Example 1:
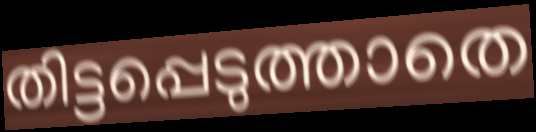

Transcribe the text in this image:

തിട്ടപ്പെടുത്താതെ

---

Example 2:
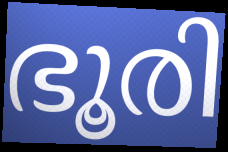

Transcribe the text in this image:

ഭൂരി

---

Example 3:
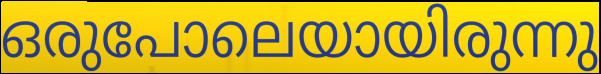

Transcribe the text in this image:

ഒരുപോലെയായിരുന്നു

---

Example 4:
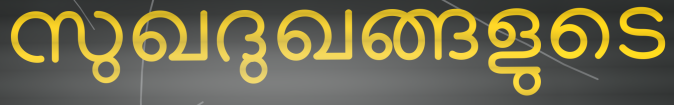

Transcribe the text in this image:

സുഖദുഖങ്ങളുടെ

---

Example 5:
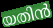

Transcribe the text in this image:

യതിൻ